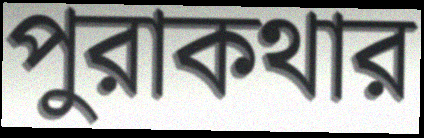
পুরাকথার